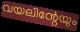
വയലിന്റേയും